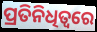
ପ୍ରତିନିଧିତ୍ବରେ